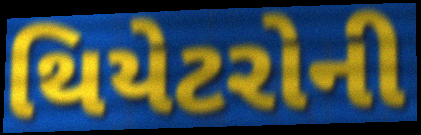
થિયેટરોની